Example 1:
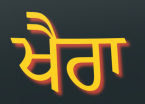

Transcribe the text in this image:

ਖੈਰਾ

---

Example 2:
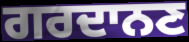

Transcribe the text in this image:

ਗਰਦਾਨਣ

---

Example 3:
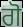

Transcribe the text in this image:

ਗੋ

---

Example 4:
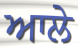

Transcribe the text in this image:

ਆਲੇ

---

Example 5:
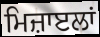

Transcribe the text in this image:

ਮਿਜ਼ਾੲਲਾਂ